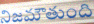
నిజమౌతుంది